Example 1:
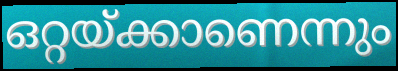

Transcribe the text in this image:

ഒറ്റയ്ക്കാണെന്നും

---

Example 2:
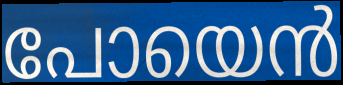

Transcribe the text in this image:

പോയെൻ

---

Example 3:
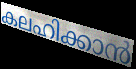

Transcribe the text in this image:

കലഹിക്കാൻ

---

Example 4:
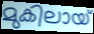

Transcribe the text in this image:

മുകിലായ്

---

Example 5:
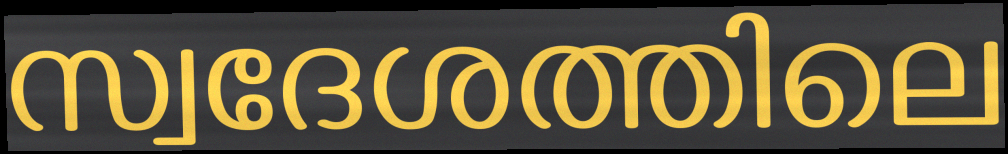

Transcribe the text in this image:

സ്വദേശത്തിലെ